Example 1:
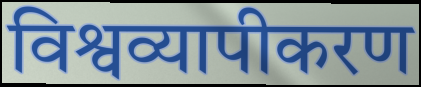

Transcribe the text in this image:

विश्वव्यापीकरण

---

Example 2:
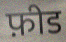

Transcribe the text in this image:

फ़ीड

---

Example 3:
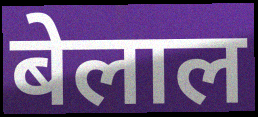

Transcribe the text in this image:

बेलाल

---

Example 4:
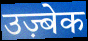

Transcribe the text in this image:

उज़्बेक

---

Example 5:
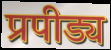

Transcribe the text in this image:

प्रपीड्य